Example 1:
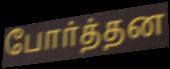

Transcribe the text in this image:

போர்த்தன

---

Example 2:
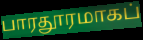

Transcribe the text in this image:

பாரதூரமாகப்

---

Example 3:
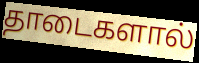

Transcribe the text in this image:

தாடைகளால்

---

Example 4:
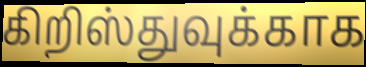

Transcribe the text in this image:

கிறிஸ்துவுக்காக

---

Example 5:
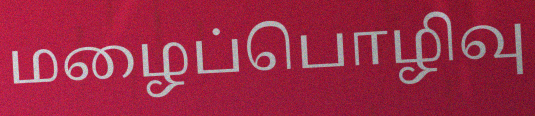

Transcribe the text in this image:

மழைப்பொழிவு